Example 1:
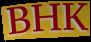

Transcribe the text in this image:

BHK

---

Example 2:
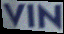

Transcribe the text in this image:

VIN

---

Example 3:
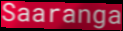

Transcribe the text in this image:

Saaranga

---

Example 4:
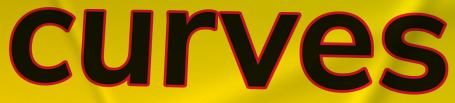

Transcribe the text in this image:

curves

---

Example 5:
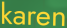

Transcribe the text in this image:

karen